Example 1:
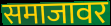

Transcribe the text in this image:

समाजावर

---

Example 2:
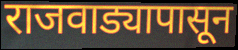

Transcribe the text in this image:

राजवाड्यापासून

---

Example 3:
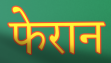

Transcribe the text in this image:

फेरान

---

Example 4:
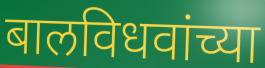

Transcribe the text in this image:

बालविधवांच्या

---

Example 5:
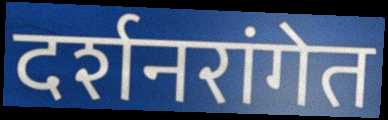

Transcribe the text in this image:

दर्शनरांगेत